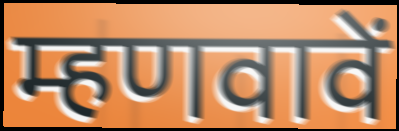
म्हणवावें